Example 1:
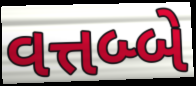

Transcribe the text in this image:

વત્તબ્બે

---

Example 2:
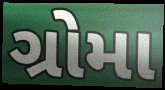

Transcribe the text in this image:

ગ્રોમા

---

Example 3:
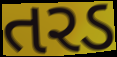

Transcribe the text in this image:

તરડ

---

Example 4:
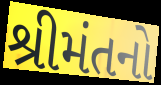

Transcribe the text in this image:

શ્રીમંતનો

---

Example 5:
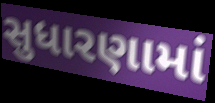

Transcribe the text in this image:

સુધારણામાં